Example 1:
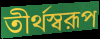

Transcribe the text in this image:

তীর্থস্বরূপ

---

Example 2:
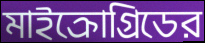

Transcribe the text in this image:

মাইক্রোগ্রিডের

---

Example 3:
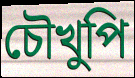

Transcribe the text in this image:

চৌখুপি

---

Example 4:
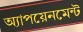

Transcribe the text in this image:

অ্যাপয়েনমেন্ট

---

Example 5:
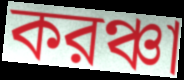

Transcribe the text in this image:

করঞ্চা